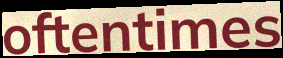
oftentimes